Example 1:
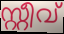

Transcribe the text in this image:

സ്റ്റീവ്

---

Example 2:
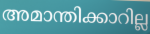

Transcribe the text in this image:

അമാന്തിക്കാറില്ല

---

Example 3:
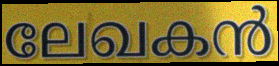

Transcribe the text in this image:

ലേഖകൻ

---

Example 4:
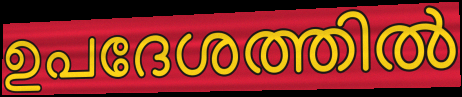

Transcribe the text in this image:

ഉപദേശത്തിൽ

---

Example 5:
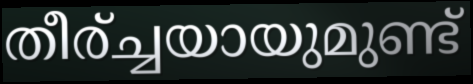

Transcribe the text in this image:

തീര്ച്ചയായുമുണ്ട്